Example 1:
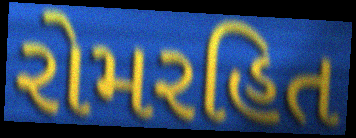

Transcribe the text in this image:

રોમરહિત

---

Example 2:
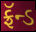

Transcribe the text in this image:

ફ્રૅન્ડ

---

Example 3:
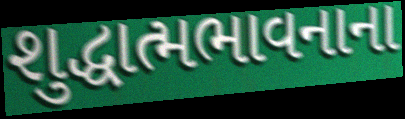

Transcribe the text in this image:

શુદ્ધાત્મભાવનાના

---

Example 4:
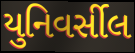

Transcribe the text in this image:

યુનિવર્સીલ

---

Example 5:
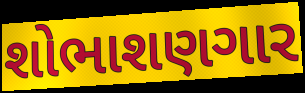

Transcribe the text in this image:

શોભાશણગાર